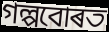
গল্পবোৰত